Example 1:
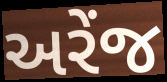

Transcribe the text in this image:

અરેંજ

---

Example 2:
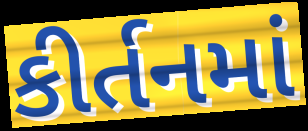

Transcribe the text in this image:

કીર્તનમાં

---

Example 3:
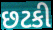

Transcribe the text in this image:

છટકી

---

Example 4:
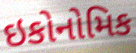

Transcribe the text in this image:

ઇકોનોમિક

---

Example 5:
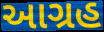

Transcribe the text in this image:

આગ્રહ